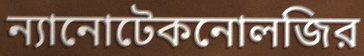
ন্যানোটেকনোলজির